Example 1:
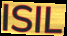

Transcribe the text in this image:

ISIL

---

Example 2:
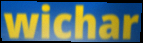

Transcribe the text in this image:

wichar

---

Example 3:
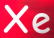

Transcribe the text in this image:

Xe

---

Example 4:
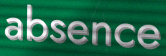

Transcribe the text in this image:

absence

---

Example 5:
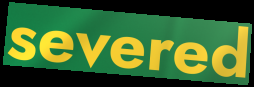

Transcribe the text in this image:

severed